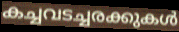
കച്ചവടച്ചരക്കുകൾ